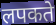
लपकते